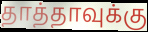
தாத்தாவுக்கு